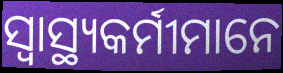
ସ୍ବାସ୍ଥ୍ୟକର୍ମୀମାନେ